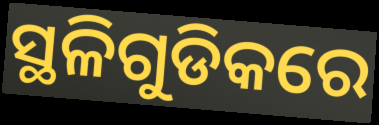
ସ୍ଥଳିଗୁଡିକରେ